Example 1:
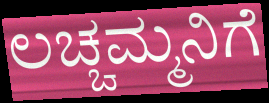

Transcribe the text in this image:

ಲಚ್ಚಮ್ಮನಿಗೆ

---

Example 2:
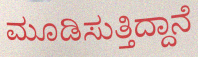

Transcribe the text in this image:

ಮೂಡಿಸುತ್ತಿದ್ದಾನೆ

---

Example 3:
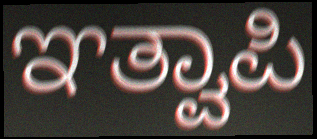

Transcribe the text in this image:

ಞತ್ವಾಪಿ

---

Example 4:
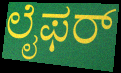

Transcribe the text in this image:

ಲೈಫರ್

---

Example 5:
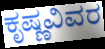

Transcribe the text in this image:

ಕೃಷ್ಣವಿವರ